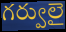
గర్వులై